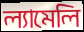
ল্যামেলি